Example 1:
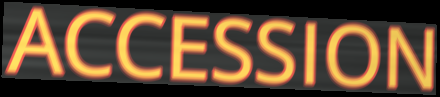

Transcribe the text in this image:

ACCESSION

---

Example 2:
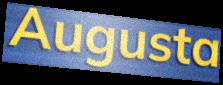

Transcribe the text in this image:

Augusta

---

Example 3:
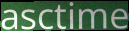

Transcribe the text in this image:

asctime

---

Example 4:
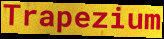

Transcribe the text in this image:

Trapezium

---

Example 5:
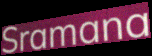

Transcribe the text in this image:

Sramana